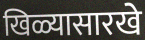
खिळ्यासारखे